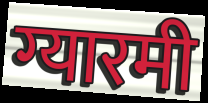
ग्यारमी